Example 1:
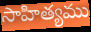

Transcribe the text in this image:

సాహిత్యము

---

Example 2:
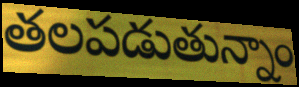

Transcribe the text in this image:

తలపడుతున్నాం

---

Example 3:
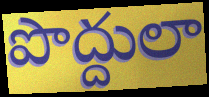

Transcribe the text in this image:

పొద్దులా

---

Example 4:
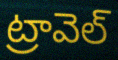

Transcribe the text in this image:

ట్రావెల్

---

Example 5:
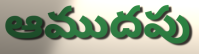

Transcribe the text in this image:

ఆముదపు